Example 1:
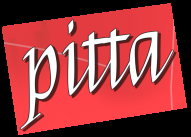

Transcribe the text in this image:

pitta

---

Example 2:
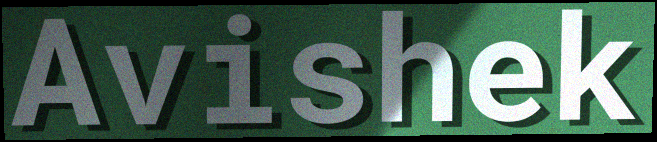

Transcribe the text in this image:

Avishek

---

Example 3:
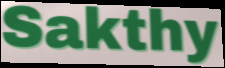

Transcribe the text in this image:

Sakthy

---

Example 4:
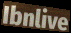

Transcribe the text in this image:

Ibnlive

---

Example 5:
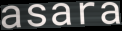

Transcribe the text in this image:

asara